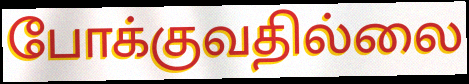
போக்குவதில்லை